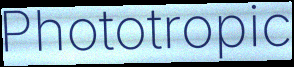
Phototropic